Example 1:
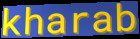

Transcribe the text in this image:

kharab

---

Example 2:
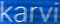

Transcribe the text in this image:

karvi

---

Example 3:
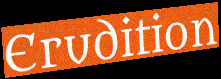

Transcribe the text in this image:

Erudition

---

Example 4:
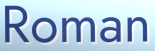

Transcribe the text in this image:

Roman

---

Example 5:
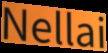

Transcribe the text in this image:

Nellai